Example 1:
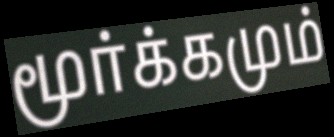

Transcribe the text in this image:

மூர்க்கமும்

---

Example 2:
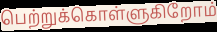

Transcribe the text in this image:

பெற்றுக்கொள்ளுகிறோம்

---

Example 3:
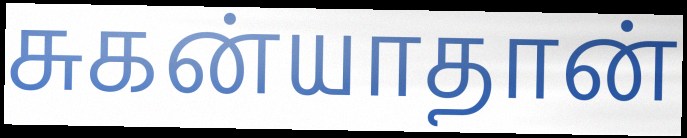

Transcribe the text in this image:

சுகன்யாதான்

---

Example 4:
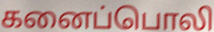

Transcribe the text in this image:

கனைப்பொலி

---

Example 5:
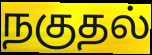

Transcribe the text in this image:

நகுதல்